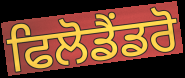
ਫਿਲੋਡੈਂਡਰੋ